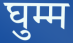
घुम्म